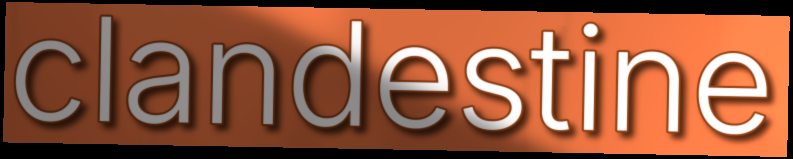
clandestine